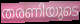
തരണിയുടെ